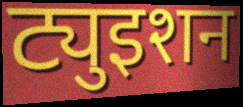
ट्युइशन